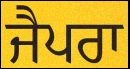
ਜੈਪਰਾ